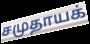
சமுதாயக்